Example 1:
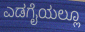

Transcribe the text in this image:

ಎಡಗೈಯಲ್ಲೂ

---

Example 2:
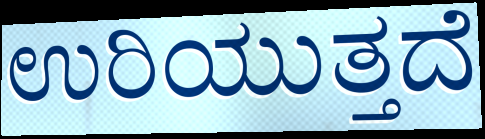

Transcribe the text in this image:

ಉರಿಯುತ್ತದೆ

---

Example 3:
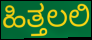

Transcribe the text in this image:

ಹಿತ್ತಲಲಿ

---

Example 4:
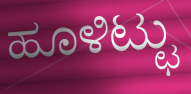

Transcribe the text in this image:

ಹೂಳಿಟ್ಟು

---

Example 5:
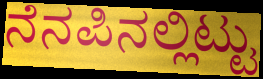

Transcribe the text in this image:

ನೆನಪಿನಲ್ಲಿಟ್ಟು